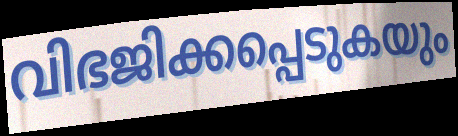
വിഭജിക്കപ്പെടുകയും